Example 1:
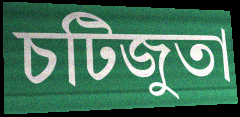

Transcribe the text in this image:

চটিজুতা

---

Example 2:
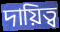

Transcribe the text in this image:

দায়িত্ব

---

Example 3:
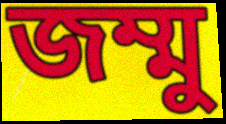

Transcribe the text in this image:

জম্মু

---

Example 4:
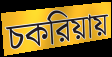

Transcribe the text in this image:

চকরিয়ায়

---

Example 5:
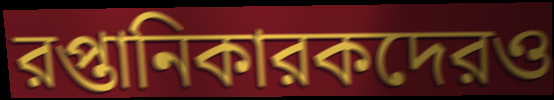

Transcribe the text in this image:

রপ্তানিকারকদেরও